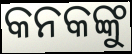
କନକଙ୍କୁ